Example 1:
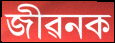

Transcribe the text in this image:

জীৱনক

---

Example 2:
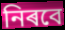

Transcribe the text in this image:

নিৰবে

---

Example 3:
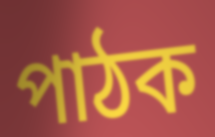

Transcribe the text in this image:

পাঠক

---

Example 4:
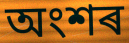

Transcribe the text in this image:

অংশৰ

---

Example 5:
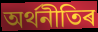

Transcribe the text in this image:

অৰ্থনীতিৰ